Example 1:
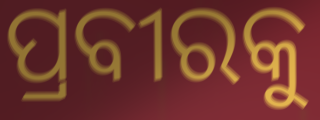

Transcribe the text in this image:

ପ୍ରବୀରକୁ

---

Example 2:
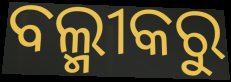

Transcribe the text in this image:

ବଲ୍ମୀକରୁ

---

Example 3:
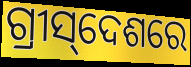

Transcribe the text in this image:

ଗ୍ରୀସ୍‌ଦେଶରେ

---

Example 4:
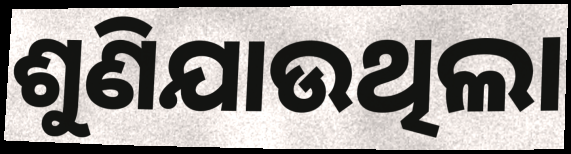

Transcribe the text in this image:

ଶୁଣିଯାଉଥିଲା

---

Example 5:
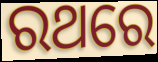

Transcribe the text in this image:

ରଥରେ